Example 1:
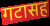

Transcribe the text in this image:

गटासह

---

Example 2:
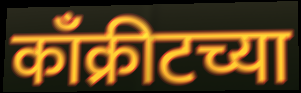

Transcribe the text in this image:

काँक्रीटच्या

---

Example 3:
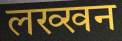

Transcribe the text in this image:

लख्खन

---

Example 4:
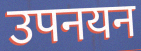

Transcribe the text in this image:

उपनयन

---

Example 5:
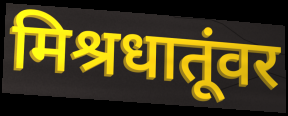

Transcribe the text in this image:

मिश्रधातूंवर